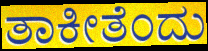
ತಾಕೀತೆಂದು